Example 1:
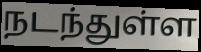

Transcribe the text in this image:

நடந்துள்ள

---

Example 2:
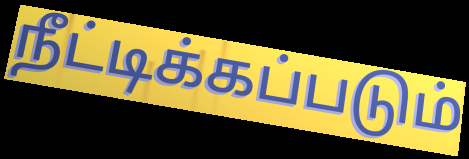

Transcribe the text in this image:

நீட்டிக்கப்படும்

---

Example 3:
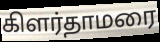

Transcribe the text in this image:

கிளர்தாமரை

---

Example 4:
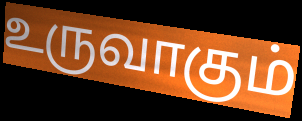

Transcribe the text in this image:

உருவாகும்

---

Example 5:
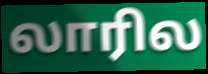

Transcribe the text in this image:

லாரில